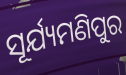
ସୂର୍ଯ୍ୟମଣିପୁର